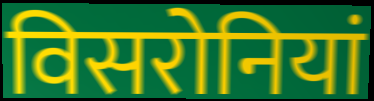
विसरोनियां